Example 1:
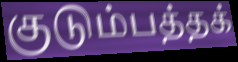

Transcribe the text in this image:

குடும்பத்தக்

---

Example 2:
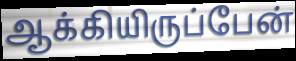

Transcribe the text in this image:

ஆக்கியிருப்பேன்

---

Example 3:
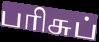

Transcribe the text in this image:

பரிசுப்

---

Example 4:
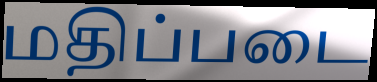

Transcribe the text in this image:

மதிப்படை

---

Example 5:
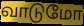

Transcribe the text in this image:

வாடுமோ